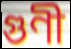
গুণী